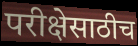
परीक्षेसाठीच